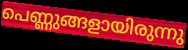
പെണ്ണുങ്ങളായിരുന്നു